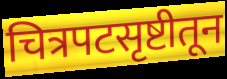
चित्रपटसृष्टीतून